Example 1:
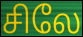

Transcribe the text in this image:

சிலே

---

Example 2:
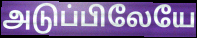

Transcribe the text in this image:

அடுப்பிலேயே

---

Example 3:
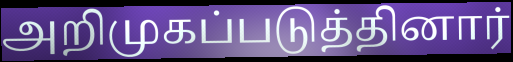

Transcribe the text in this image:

அறிமுகப்படுத்தினார்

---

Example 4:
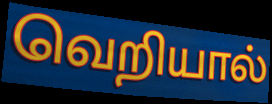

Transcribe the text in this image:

வெறியால்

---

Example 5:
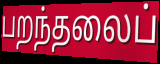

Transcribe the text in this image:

பறந்தலைப்